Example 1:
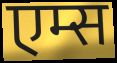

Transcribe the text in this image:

एम्स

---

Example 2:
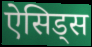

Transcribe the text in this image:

ऐसिड्स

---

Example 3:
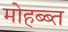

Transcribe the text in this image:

मोहब्ब्त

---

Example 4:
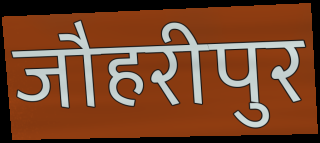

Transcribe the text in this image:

जौहरीपुर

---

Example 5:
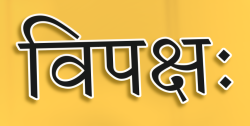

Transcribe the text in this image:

विपक्षः